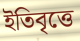
ইতিবৃত্তে